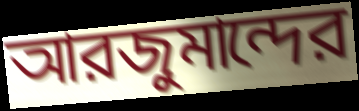
আরজুমান্দের